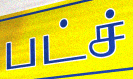
பட்ச்